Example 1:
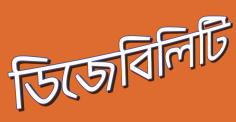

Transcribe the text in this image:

ডিজেবিলিটি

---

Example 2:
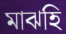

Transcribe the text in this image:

মাঝহি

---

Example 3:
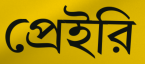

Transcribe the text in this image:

প্রেইরি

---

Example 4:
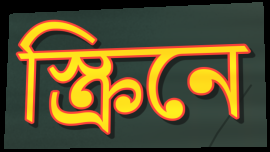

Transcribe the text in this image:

স্ক্রিনে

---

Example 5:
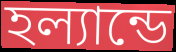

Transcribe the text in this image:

হল্যান্ডে